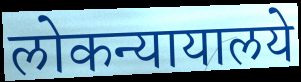
लोकन्यायालये